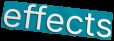
effects